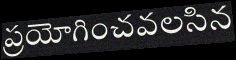
ప్రయోగించవలసిన